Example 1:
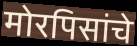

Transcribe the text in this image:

मोरपिसांचे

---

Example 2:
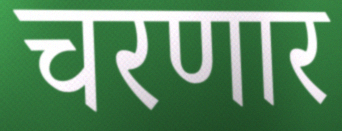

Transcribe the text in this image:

चरणार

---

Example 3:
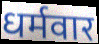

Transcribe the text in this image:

धर्मवार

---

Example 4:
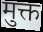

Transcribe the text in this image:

मुक्त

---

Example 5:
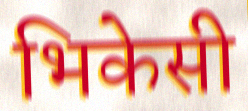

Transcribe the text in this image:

भिकेसी